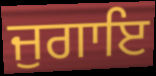
ਜੁਗਾਇ